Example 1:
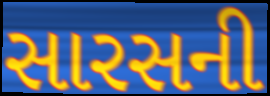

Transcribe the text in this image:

સારસની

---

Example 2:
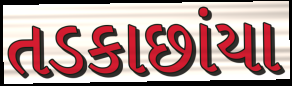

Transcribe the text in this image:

તડકાછાંયા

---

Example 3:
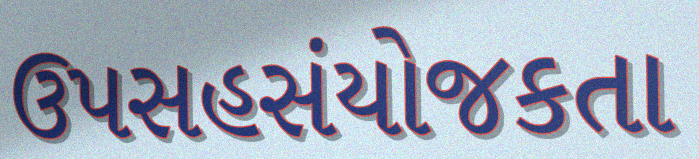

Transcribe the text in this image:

ઉપસહસંયોજકતા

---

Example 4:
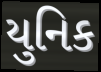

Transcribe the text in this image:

યુનિક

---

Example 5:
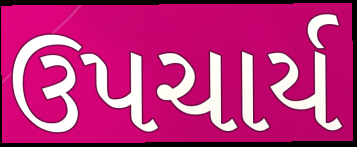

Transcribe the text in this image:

ઉપચાર્ય